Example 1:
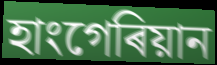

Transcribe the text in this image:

হাংগেৰিয়ান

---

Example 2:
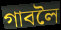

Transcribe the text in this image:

গাবলৈ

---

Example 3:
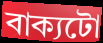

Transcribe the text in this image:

বাক্যটো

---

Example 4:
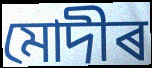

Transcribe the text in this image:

মোদীৰ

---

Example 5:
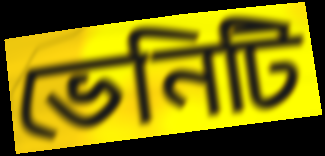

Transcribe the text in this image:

ভেনিটি